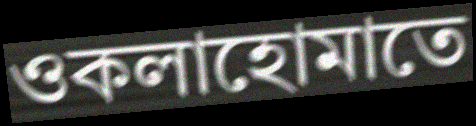
ওকলাহোমাতে